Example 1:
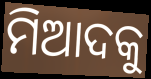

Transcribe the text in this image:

ମିଆଦକୁ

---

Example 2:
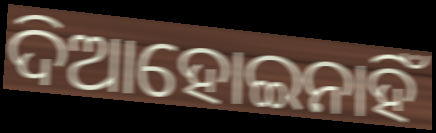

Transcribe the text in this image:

ଦିଆହୋଇନାହିଁ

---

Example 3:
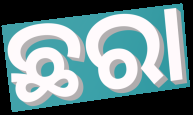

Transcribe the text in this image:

ଛରା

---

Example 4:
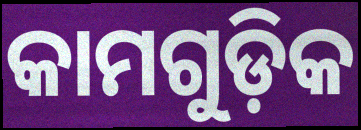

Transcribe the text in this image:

କାମଗୁଡ଼ିକ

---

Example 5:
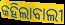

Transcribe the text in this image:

କହିଲାବାଲୀ